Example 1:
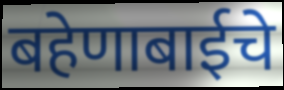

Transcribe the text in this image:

बहेणाबाईचे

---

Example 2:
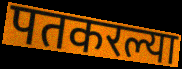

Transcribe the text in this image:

पतकरल्या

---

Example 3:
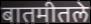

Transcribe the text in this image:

बातमीतले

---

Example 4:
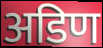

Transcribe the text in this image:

अडिण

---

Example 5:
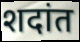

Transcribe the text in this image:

शदांत